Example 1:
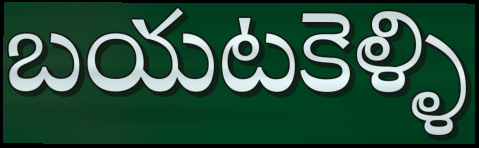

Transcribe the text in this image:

బయటకెళ్ళి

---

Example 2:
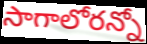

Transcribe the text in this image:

సాగాలోరన్నో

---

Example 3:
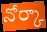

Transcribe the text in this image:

నోర్కా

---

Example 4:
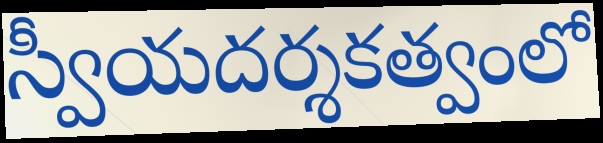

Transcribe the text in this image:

స్వీయదర్శకత్వంలో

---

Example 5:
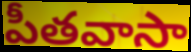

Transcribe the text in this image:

పీతవాసా